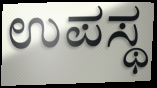
ಉಪಸ್ಥ